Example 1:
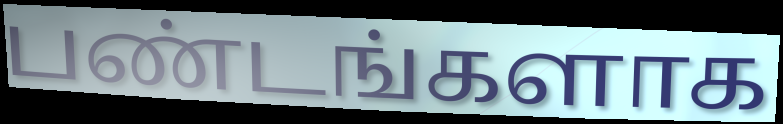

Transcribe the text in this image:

பண்டங்களாக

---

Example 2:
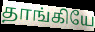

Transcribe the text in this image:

தாங்கியே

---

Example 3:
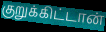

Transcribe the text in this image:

குறுக்கிட்டான்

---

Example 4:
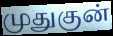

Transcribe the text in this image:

முதுகுன்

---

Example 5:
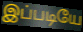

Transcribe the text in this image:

இப்படியே